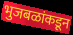
भुजबळांकडून